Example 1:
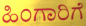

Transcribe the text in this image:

ಹಿಂಗಾರಿಗೆ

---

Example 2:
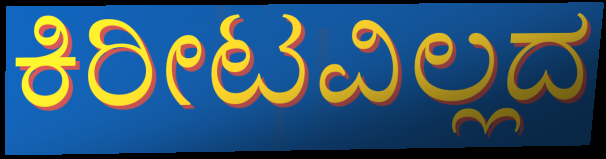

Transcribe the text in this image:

ಕಿರೀಟವಿಲ್ಲದ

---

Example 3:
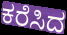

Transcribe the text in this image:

ಕರೆಸಿದ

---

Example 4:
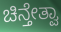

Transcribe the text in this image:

ಚಿನ್ತೇತ್ವಾ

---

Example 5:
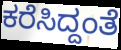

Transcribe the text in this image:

ಕರೆಸಿದ್ದಂತೆ